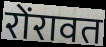
रोंरावत